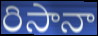
రిసానా